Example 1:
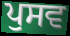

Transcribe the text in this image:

ਪੁਸਵ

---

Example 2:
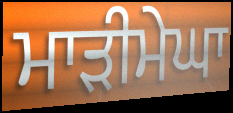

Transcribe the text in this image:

ਮਾੜੀਮੇਘਾ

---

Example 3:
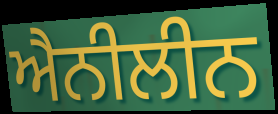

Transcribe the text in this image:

ਐਨੀਲੀਨ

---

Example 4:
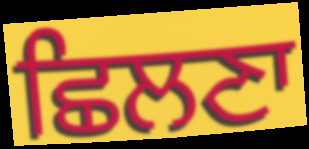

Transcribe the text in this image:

ਛਿਲਣਾ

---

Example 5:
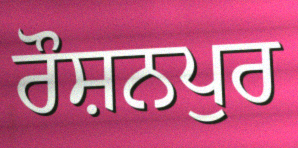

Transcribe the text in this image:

ਰੌਸ਼ਨਪੁਰ